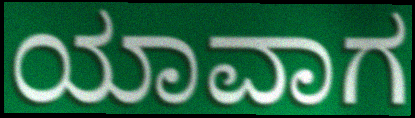
ಯಾವಾಗ